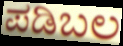
ಪಡಿಬಲ